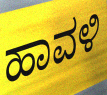
ಹಾವಳಿ